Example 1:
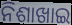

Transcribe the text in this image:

ନିଶାଖାଇ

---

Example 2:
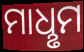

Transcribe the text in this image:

ମାଧୢମ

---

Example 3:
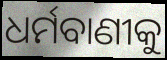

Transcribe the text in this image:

ଧର୍ମବାଣୀକୁ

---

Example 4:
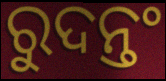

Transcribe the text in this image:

ରୁଦନ୍ତଂ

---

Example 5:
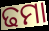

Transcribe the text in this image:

ଢମା